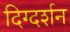
दिग्दर्शन